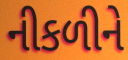
નીકળીને